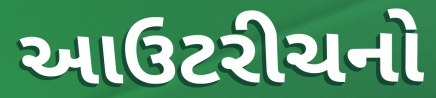
આઉટરીચનો